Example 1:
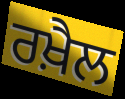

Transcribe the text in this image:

ਰਖ਼ੈਲ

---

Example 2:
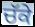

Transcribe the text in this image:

ਚੱਕੇ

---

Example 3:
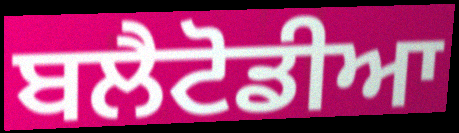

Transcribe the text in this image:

ਬਲੈਟੋਡੀਆ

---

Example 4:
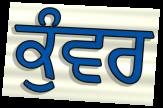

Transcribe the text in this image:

ਕੁੰਵਰ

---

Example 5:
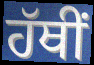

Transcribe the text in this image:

ਹੱਥੀਂ